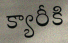
క్యారీకి